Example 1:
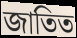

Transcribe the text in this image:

জাতিত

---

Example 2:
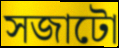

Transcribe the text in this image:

সজাটো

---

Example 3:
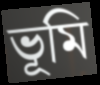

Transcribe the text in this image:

ভূমি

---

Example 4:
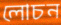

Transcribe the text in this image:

লোচন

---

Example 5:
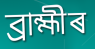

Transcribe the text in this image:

ব্ৰাহ্মীৰ